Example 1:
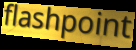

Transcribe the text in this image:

flashpoint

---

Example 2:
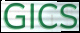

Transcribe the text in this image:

GICS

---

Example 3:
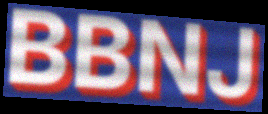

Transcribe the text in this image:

BBNJ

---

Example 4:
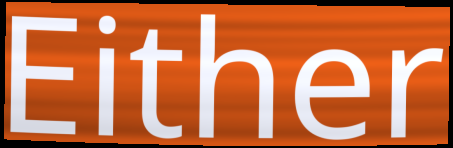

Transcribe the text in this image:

Either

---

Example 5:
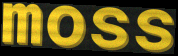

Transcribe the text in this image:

moss